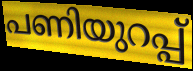
പണിയുറപ്പ്